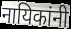
नायिकांनी